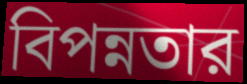
বিপন্নতার